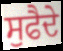
ਸੁਫੈਦੇ